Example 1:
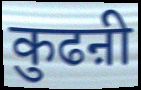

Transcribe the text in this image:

कुढऩी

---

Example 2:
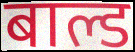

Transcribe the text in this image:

बाल्ड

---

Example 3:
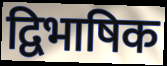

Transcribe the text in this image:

द्विभाषिक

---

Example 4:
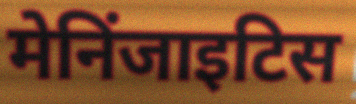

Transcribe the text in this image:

मेनिंजाइटिस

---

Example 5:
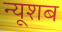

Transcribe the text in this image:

न्यूशब